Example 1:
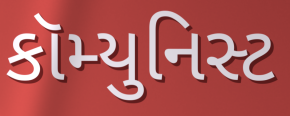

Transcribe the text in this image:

કૉમ્યુનિસ્ટ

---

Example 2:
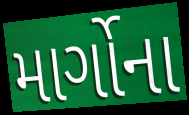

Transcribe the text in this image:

માર્ગોના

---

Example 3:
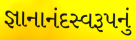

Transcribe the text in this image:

જ્ઞાનાનંદસ્વરૂપનું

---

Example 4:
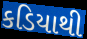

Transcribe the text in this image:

કડિયાથી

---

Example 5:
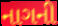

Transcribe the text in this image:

નાગની